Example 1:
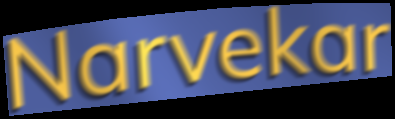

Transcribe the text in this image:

Narvekar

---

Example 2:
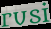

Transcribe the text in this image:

rusi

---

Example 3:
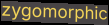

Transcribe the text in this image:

zygomorphic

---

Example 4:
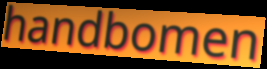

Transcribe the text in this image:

handbomen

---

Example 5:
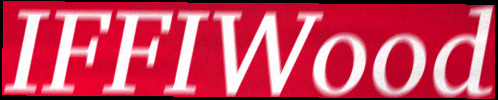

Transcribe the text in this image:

IFFIWood